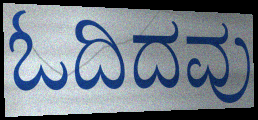
ಓದಿದವು